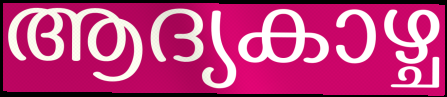
ആദ്യകാഴ്ച